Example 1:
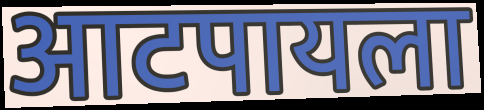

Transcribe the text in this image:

आटपायला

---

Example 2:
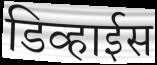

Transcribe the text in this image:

डिव्हाईस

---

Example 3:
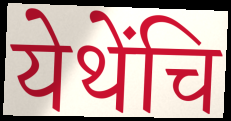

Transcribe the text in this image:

येथेंचि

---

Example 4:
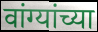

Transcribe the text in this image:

वांग्यांच्या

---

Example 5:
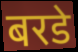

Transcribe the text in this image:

बरडे